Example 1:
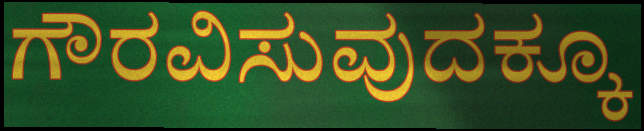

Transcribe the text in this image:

ಗೌರವಿಸುವುದಕ್ಕೂ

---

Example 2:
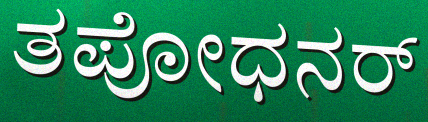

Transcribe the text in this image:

ತಪೋಧನರ್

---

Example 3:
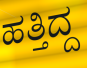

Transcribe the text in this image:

ಹತ್ತಿದ್ದ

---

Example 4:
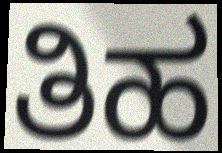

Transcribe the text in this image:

ತಿಹ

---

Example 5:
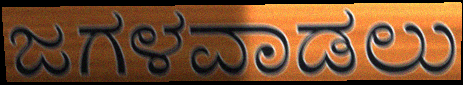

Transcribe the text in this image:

ಜಗಳವಾಡಲು